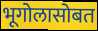
भूगोलासोबत